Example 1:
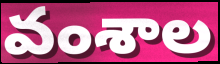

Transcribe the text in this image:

వంశాల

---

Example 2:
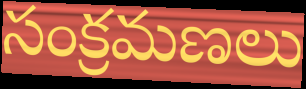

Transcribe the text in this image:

సంక్రమణలు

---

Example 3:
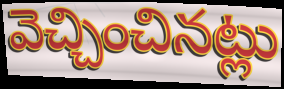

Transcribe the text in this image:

వెచ్చించినట్లు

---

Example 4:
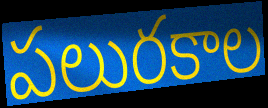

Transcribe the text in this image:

పలురకాల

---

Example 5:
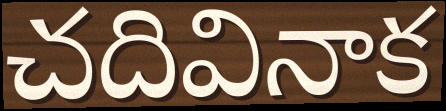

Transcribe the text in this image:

చదివినాక